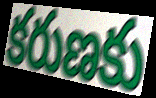
కరుణకు